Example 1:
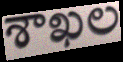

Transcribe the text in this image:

శాఖల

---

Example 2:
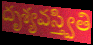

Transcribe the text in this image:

దృశ్యవస్త్వితి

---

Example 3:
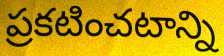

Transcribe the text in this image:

ప్రకటించటాన్ని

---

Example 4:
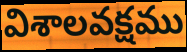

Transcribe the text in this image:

విశాలవక్షము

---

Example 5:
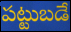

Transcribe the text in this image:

పట్టుబడే